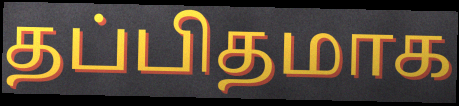
தப்பிதமாக